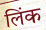
लिंक